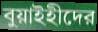
বুয়াইহীদের